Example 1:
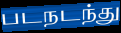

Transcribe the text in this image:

படநடந்து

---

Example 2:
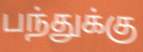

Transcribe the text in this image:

பந்துக்கு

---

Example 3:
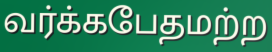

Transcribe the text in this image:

வர்க்கபேதமற்ற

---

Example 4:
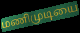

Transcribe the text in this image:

மணிமுடியை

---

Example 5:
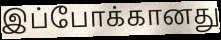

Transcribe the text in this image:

இப்போக்கானது